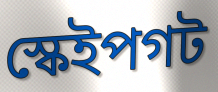
স্কেইপগট